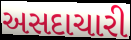
અસદાચારી